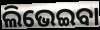
ଲିଭେଇବା